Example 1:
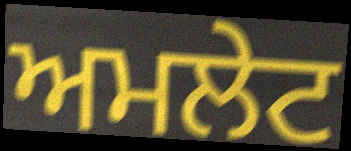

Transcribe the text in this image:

ਅਮਲੇਟ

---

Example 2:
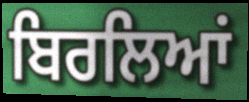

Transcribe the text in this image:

ਬਿਰਲਿਆਂ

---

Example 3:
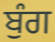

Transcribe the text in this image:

ਬੁੰਗ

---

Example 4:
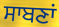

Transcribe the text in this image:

ਸਾਬਣਾਂ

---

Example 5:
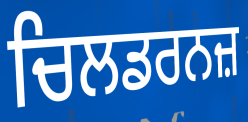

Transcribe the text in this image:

ਚਿਲਡਰਨਜ਼